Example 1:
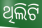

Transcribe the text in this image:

ଥିଲିଟି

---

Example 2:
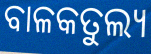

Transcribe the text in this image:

ବାଳକତୁଲ୍ୟ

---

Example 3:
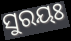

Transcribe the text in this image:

ସୁରୟଃ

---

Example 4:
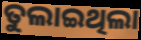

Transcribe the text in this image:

ତୁଲାଇଥିଲା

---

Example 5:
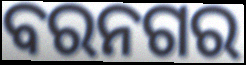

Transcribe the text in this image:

ବରନଗର